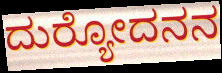
ದುರ್‍ಯೋದನನ